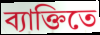
ব্যাক্তিতে